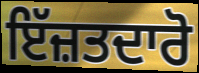
ਇੱਜ਼ਤਦਾਰੋ